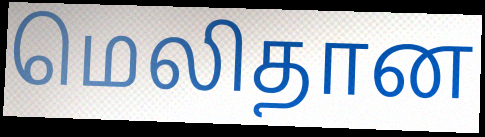
மெலிதான